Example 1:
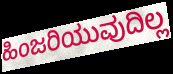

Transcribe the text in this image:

ಹಿಂಜರಿಯುವುದಿಲ್ಲ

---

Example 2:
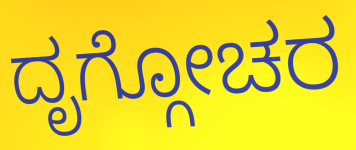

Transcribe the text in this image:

ದೃಗ್ಗೋಚರ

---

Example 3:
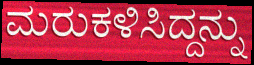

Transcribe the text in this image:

ಮರುಕಳಿಸಿದ್ದನ್ನು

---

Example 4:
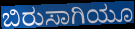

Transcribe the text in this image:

ಬಿರುಸಾಗಿಯೂ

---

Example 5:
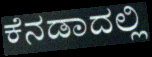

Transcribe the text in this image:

ಕೆನಡಾದಲ್ಲಿ